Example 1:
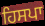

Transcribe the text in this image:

ਹਿਸਪਾ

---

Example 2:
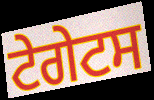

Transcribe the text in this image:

ਟੇਗੇਟਸ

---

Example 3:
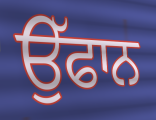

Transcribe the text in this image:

ਉੱਫਾਨ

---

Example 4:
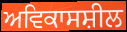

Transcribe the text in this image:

ਅਵਿਕਾਸਸ਼ੀਲ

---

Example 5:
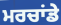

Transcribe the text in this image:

ਮਰਚਾਂਡੇ